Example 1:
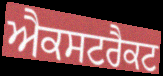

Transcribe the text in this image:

ਐਕਸਟਰੈਕਟ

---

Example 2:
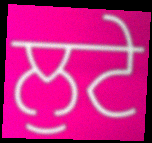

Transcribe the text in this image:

ਲੁਟੇ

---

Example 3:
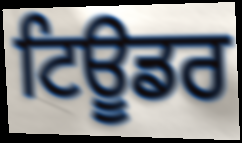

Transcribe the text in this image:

ਟਿਊਡਰ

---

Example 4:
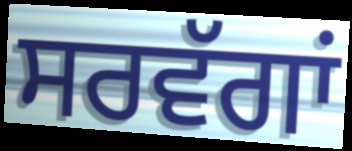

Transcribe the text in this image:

ਸਰਵੱਗਾਂ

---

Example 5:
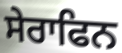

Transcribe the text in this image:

ਸੇਰਾਫਿਨ